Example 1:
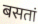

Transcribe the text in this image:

बसतां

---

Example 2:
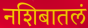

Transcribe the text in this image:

नशिबातलं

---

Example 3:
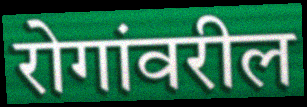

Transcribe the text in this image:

रोगांवरील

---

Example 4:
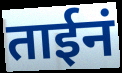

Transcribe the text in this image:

ताईनं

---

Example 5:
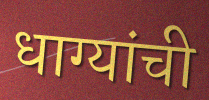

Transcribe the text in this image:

धाग्यांची